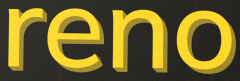
reno